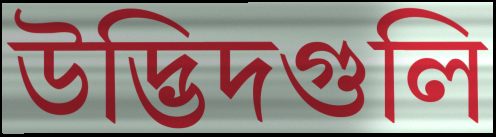
উদ্ভিদগুলি